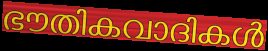
ഭൗതികവാദികൾ